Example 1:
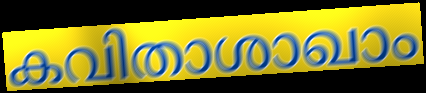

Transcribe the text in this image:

കവിതാശാഖാം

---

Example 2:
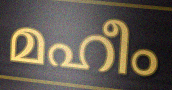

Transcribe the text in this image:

മഹീം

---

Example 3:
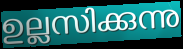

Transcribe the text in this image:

ഉല്ലസിക്കുന്നു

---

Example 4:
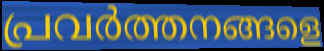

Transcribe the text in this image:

പ്രവർത്തനങ്ങളെ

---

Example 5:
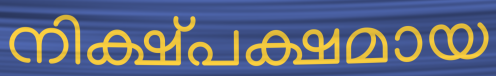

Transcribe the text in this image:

നിക്ഷ്പക്ഷമായ